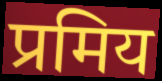
प्रमिय